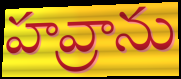
హవ్రాను